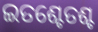
ଇତଶ୍ଚେତଶ୍ଚ